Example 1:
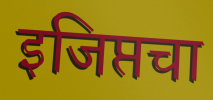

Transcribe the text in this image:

इजिप्तचा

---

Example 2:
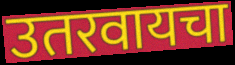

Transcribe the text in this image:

उतरवायचा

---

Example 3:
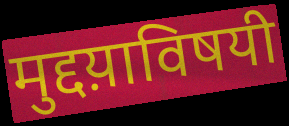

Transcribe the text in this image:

मुद्दय़ाविषयी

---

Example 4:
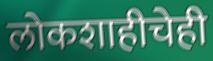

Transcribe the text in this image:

लोकशाहीचेही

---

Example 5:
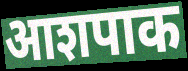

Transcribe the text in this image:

आशपाक